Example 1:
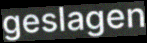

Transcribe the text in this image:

geslagen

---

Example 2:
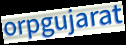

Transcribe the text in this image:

orpgujarat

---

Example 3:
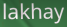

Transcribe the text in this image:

lakhay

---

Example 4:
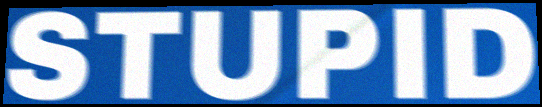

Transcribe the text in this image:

STUPID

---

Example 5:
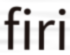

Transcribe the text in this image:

firi